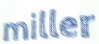
miller